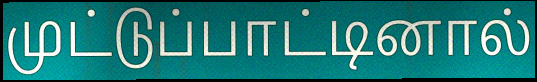
முட்டுப்பாட்டினால்